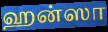
ஹன்ஸா